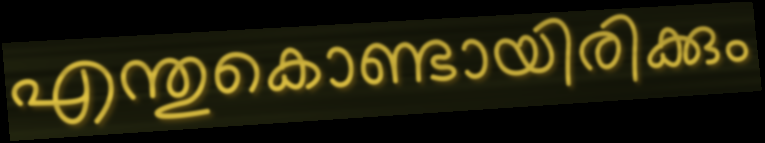
എന്തുകൊണ്ടായിരിക്കും